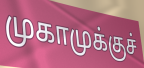
முகாமுக்குச்